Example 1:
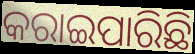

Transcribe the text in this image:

କରାଇପାରିଛି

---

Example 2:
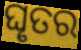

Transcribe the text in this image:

ଘୃତର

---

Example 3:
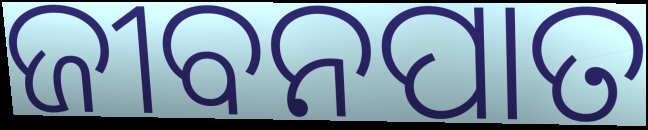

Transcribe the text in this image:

ଜୀବନପାତ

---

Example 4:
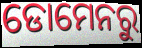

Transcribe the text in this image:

ଡୋମେନରୁ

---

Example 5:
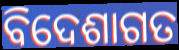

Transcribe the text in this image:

ବିଦେଶାଗତ